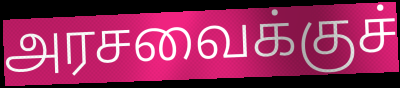
அரசவைக்குச்